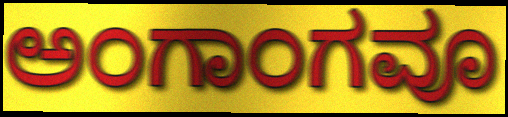
ಅಂಗಾಂಗವೂ